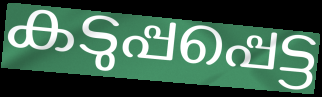
കടുപ്പപ്പെട്ട